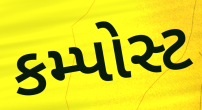
કમ્પોસ્ટ